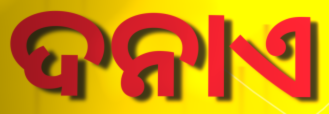
ଦନାଏ